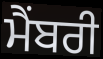
ਮੈਂਬਰੀ